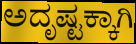
ಅದೃಷ್ಟಕ್ಕಾಗಿ